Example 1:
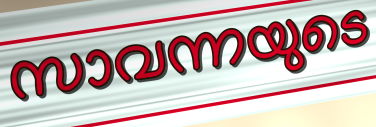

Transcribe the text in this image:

സാവന്നയുടെ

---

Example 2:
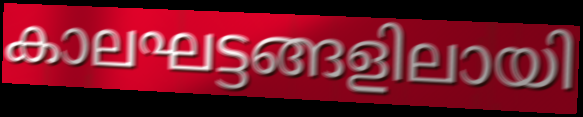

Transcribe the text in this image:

കാലഘട്ടങ്ങളിലായി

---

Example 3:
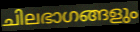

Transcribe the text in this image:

ചിലഭാഗങ്ങളും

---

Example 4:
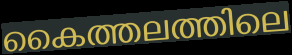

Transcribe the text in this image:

കൈത്തലത്തിലെ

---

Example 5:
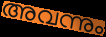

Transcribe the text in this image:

അവന്നും